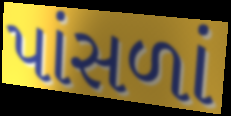
પાંસળાં